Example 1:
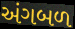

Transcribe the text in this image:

અંગબળ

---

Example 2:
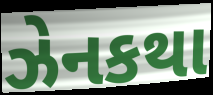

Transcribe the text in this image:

ઝેનકથા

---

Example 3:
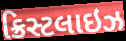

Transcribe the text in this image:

ક્રિસ્ટલાઇઝ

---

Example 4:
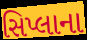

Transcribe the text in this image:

સિપ્લાના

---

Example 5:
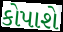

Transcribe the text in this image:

કોપાશે